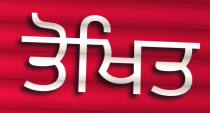
ਤੋਖਿਤ